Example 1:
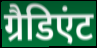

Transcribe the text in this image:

ग्रैडिएंट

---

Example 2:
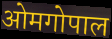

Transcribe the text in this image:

ओमगोपाल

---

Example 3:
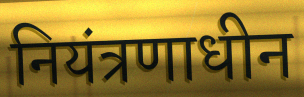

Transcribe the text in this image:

नियंत्रणाधीन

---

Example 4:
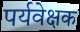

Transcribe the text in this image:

पर्यवेक्षक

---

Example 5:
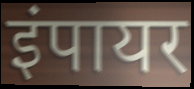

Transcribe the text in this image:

इंपायर